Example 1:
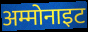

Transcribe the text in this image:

अम्मोनाइट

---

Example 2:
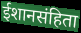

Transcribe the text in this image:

ईशानसंहिता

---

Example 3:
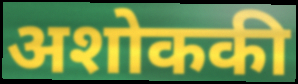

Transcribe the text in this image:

अशोककी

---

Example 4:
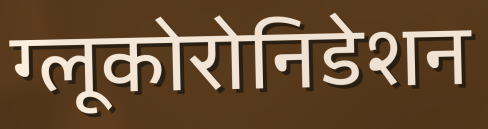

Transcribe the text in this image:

ग्लूकोरोनिडेशन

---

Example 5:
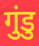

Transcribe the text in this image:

गुंडु